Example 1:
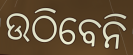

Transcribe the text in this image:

ଉଠିବେନି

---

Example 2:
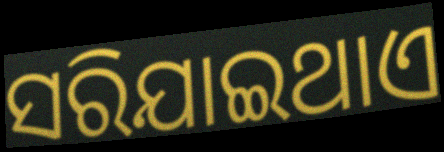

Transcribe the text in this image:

ସରିଯାଇଥାଏ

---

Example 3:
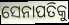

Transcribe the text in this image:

ସେନାପତିକୁ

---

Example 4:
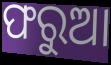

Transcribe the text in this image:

ଫରୁଆ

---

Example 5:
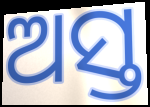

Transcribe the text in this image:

ଅସ୍ତ